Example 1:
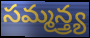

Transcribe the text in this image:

సమ్మన్త్ర్య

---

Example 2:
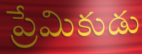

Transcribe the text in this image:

ప్రేమికుడు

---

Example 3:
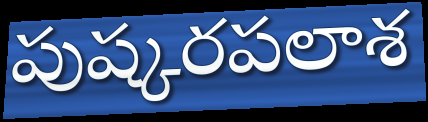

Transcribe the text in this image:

పుష్కరపలాశ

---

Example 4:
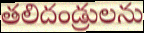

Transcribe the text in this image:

తలిదండ్రులను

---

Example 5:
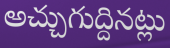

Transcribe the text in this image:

అచ్చుగుద్దినట్లు